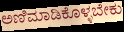
ಅಣಿಮಾಡಿಕೊಳ್ಳಬೇಕು